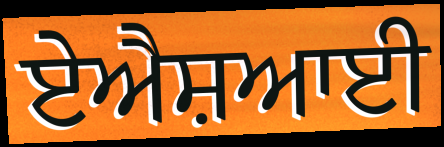
ਏਐਸ਼ਆਈ